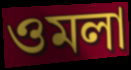
ওমলা